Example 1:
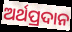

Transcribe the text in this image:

ଅର୍ଥପ୍ରଦାନ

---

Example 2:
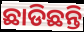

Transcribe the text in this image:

ଛାଡିଛନ୍ତି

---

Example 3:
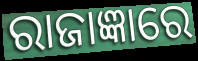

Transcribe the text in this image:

ରାଜାଜ୍ଞାରେ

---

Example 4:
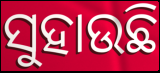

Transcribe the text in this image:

ସୁହାଉଛି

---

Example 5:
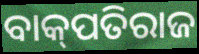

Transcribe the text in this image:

ବାକ୍‌ପତିରାଜ